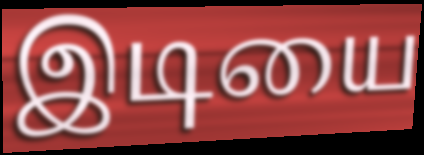
இடியை